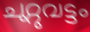
ചുറ്റുവട്ടം